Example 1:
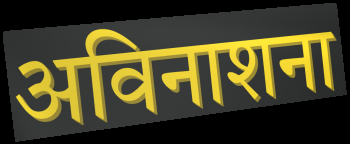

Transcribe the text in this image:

अविनाशना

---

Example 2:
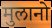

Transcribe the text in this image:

मुलानो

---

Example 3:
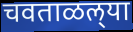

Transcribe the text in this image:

चवताळल्या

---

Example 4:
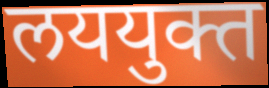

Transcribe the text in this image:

लययुक्त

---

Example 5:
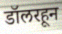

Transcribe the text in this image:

डॉलरहून